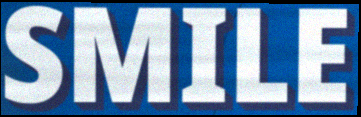
SMILE